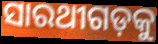
ସାରଥୀଗଡ଼କୁ